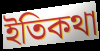
ইতিকথা